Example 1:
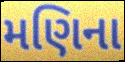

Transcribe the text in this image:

મણિના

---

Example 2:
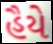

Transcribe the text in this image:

હૈયે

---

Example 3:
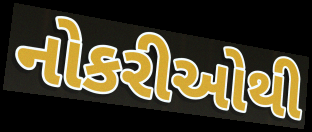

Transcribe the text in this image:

નોકરીઓથી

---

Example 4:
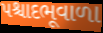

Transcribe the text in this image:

પશ્ચાદભૂવાળા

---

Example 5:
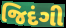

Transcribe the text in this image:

જિદંગી